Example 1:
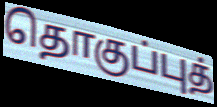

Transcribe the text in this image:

தொகுப்புத்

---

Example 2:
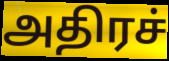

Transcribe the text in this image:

அதிரச்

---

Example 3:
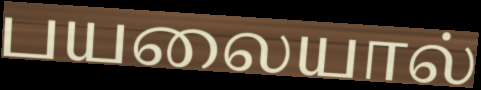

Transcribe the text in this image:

பயலையால்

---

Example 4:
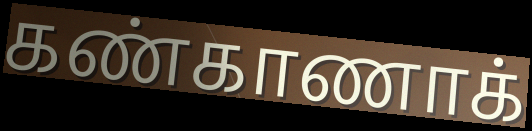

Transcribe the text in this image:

கண்காணாக்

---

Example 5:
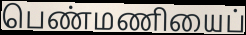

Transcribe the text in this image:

பெண்மணியைப்